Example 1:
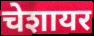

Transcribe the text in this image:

चेशायर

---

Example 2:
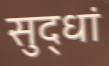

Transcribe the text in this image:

सुद्धां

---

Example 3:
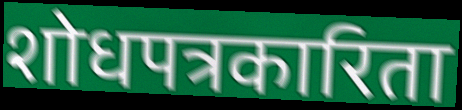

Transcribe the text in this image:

शोधपत्रकारिता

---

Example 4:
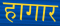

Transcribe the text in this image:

हागार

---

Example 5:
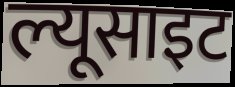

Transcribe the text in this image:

ल्यूसाइट